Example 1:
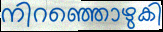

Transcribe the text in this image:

നിറഞ്ഞൊഴുകി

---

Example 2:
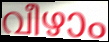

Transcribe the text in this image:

വീഴാം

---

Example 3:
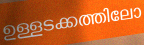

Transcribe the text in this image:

ഉള്ളടക്കത്തിലോ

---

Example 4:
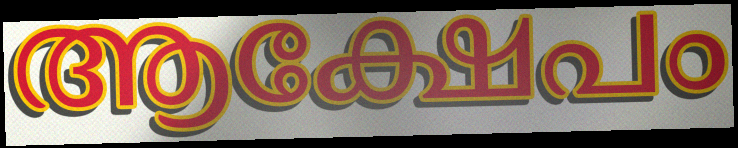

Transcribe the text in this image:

ആക്ഷേപം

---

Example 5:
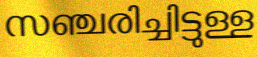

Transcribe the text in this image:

സഞ്ചരിച്ചിട്ടുള്ള